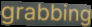
grabbing